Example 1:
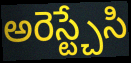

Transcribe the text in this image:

అరెస్ట్చేసి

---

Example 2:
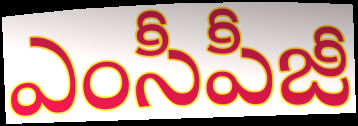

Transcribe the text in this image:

ఎంసీపీజీ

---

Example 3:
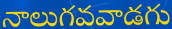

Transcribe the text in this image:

నాలుగవవాడగు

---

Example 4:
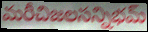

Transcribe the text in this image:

మరీచిజలసన్నిభమ్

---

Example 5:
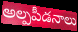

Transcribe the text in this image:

అల్పపీడనాలు